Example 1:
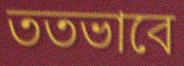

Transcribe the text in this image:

ততভাবে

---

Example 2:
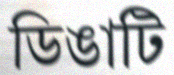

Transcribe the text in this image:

ডিঙাটি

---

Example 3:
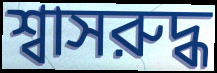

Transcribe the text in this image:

শ্বাসরুদ্ধ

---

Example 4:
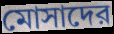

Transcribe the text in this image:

মোসাদের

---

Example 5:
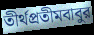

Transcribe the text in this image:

তীর্থপ্রতীমবাবুর